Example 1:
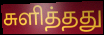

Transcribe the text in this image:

சுளித்தது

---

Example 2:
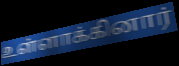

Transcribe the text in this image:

உள்ளாக்கினார்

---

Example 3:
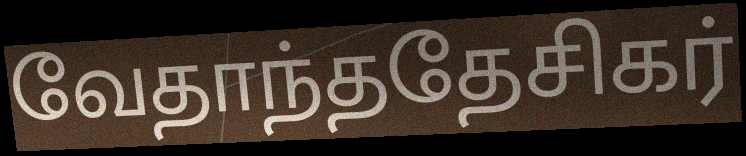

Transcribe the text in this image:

வேதாந்ததேசிகர்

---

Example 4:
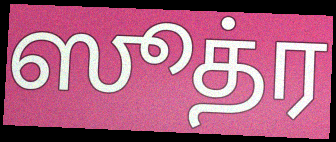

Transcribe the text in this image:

ஸூத்ர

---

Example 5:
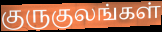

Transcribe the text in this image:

குருகுலங்கள்